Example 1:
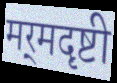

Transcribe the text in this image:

मर्मदृष्टी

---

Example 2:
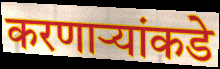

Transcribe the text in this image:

करणाऱ्यांकडे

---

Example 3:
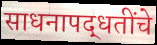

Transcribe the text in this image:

साधनापद्धतींचे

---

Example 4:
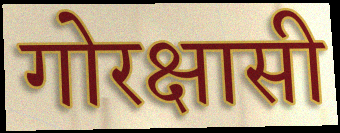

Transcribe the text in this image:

गोरक्षासी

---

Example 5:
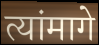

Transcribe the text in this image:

त्यांमागे